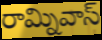
రామ్నివాస్